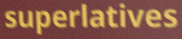
superlatives